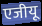
एजीयू